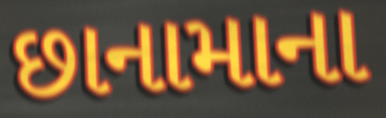
છાનામાના